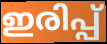
ഇരിപ്പ്